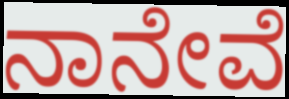
ನಾನೇವೆ